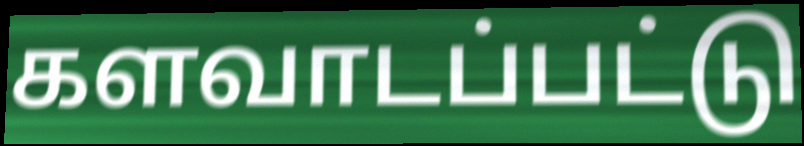
களவாடப்பட்டு